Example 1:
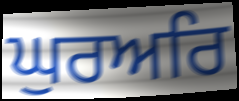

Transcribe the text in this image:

ਘੁਰਅਰਿ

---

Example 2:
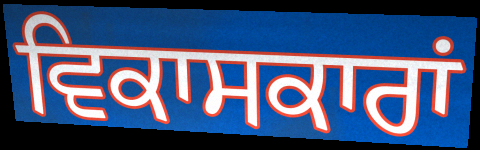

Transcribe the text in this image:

ਵਿਕਾਸਕਾਰਾਂ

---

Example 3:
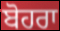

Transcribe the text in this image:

ਬੋਹਰਾ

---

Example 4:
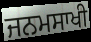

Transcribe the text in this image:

ਜਨਮਸਾਖੀ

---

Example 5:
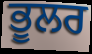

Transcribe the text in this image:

ਭੂਲਰ